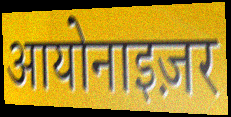
आयोनाइज़र